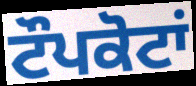
ਟੌਪਕੋਟਾਂ